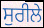
ਸੁਰੀਲੇ